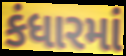
કંધારમાં